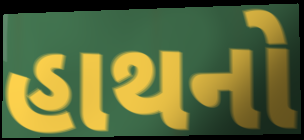
હાથનો